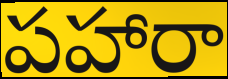
పహారా